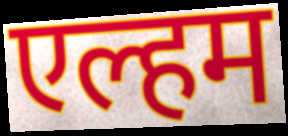
एल्हम